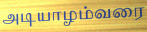
அடியாழம்வரை